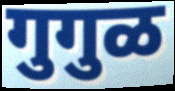
गुगुळ